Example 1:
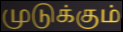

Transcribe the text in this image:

முடுக்கும்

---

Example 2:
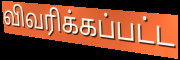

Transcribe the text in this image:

விவரிக்கப்பட்ட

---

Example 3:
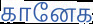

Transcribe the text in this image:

கானேக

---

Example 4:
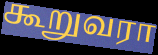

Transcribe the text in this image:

கூறுவரா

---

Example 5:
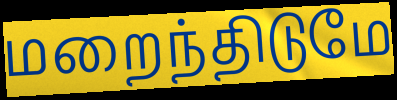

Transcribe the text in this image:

மறைந்திடுமே